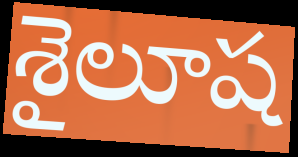
శైలూష